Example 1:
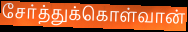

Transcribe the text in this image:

சேர்த்துக்கொள்வான்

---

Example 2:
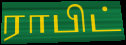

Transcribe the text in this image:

ராபிட்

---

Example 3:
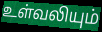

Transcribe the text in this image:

உள்வலியும்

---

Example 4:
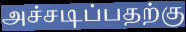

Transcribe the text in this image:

அச்சடிப்பதற்கு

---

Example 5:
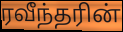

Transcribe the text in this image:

ரவீந்தரின்